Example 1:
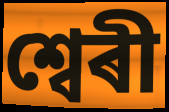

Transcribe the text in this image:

শ্বেৰী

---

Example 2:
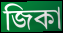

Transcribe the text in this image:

জিকা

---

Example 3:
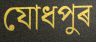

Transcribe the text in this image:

যোধপুৰ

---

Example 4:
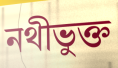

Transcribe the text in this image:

নথীভুক্ত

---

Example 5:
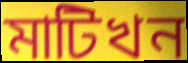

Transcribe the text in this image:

মাটিখন